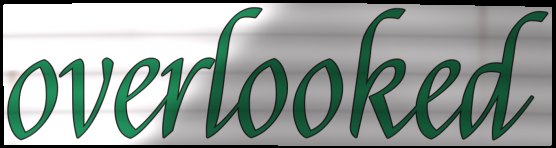
overlooked